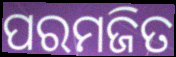
ପରମଜିତ